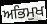
ਅਭਿਮੁਖ